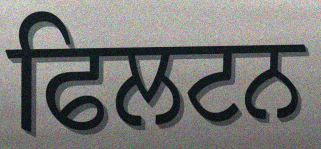
ਫਿਲਟਨ